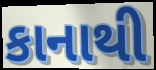
કાનાથી